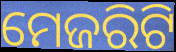
ମେଜରିଟି